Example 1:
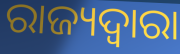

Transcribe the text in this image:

ରାଜ୍ୟଦ୍ୱାରା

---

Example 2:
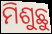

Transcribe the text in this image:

ମିଶୁଛୁ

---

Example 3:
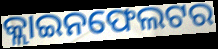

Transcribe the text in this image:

କ୍ଲାଇନଫେଲଟର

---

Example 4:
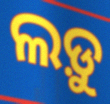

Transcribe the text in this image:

ଲଡ଼ୁ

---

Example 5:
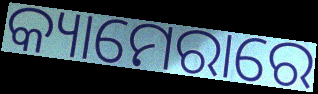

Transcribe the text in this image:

କ୍ୟାମେରାରେ